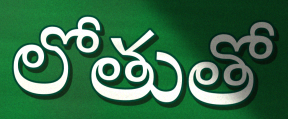
లోతుతో